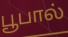
பூபால்